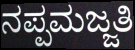
ನಪ್ಪಮಜ್ಜತಿ